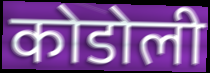
कोडोली